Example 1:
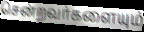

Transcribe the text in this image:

சென்றவர்களையும்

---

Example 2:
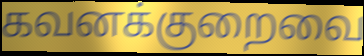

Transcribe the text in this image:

கவனக்குறைவை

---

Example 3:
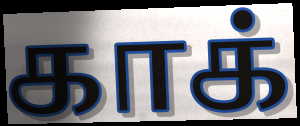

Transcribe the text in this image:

காக்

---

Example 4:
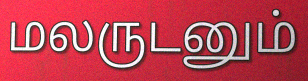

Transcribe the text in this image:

மலருடனும்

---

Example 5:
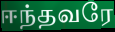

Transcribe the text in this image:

ஈந்தவரே